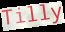
Tilly